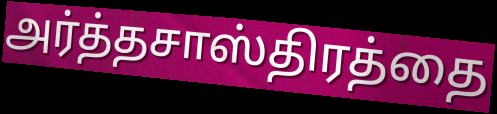
அர்த்தசாஸ்திரத்தை